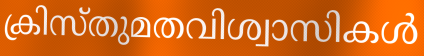
ക്രിസ്തുമതവിശ്വാസികൾ